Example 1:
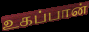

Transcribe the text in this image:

உகப்பான்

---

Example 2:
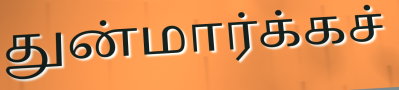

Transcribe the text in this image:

துன்மார்க்கச்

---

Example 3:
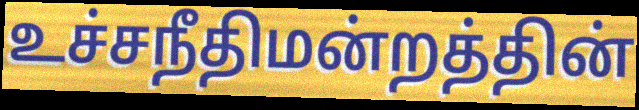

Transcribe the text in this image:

உச்சநீதிமன்றத்தின்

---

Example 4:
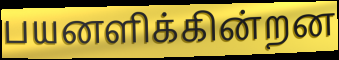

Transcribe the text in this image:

பயனளிக்கின்றன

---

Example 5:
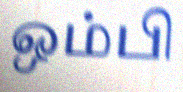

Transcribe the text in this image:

ஒம்பி